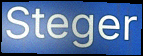
Steger